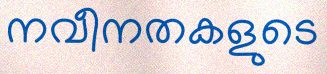
നവീനതകളുടെ